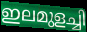
ഇലമുളച്ചി